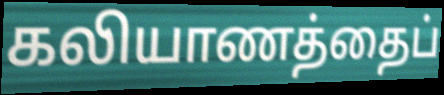
கலியாணத்தைப்